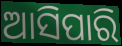
ଆସିପାରି